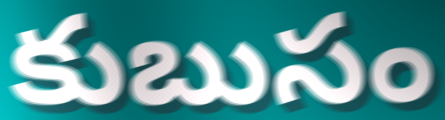
కుబుసం